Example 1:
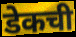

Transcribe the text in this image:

डेकची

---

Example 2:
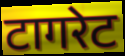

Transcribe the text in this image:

टागरेट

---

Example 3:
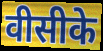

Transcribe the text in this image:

वीसीके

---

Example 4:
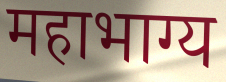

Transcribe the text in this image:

महाभाग्य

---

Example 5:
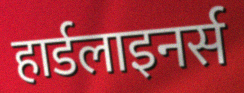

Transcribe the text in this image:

हार्डलाइनर्स